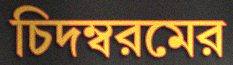
চিদম্বরমের